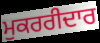
ਮੁਕਰਰੀਦਾਰ